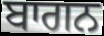
ਬਾਗਨ